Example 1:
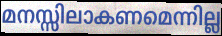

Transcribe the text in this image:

മനസ്സിലാകണമെന്നില്ല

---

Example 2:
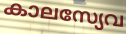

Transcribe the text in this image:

കാലസ്യേവ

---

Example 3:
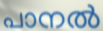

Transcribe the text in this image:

പാനൽ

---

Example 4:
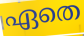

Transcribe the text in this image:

ഏതെ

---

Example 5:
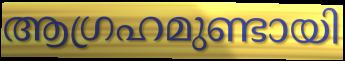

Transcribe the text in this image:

ആഗ്രഹമുണ്ടായി